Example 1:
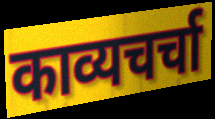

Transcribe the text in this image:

काव्यचर्चा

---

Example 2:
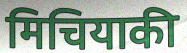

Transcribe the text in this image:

मिचियाकी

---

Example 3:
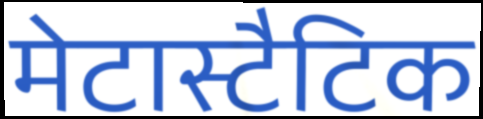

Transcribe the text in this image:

मेटास्टैटिक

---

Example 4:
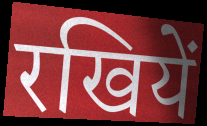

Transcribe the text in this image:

रखियें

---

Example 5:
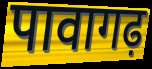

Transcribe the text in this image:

पावागढ़